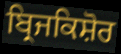
ਬ੍ਰਿਜਕਿਸ਼ੋਰ